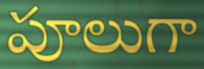
పూలుగా